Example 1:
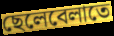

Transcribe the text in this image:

ছেলেবেলাতে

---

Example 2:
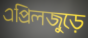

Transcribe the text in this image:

এপ্রিলজুড়ে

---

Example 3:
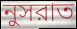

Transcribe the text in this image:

নুসরাত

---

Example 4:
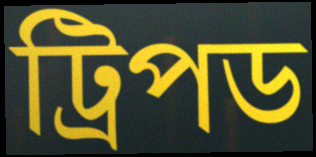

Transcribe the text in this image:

ট্রিপড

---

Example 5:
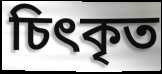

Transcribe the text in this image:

চিৎকৃত